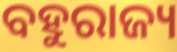
ବହୁରାଜ୍ୟ